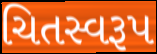
ચિતસ્વરૂપ